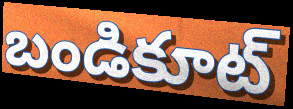
బండికూట్